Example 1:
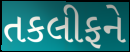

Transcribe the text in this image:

તકલીફને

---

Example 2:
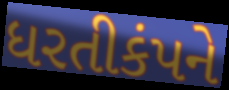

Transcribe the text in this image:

ધરતીકંપને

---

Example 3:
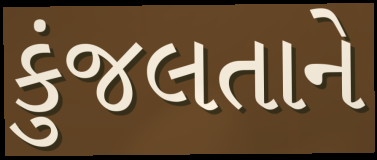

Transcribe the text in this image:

કુંજલતાને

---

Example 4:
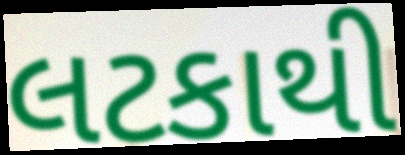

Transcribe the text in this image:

લટકાથી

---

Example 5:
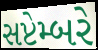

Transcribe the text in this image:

સપ્ટેમ્બરે